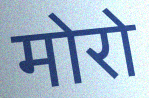
मोरो